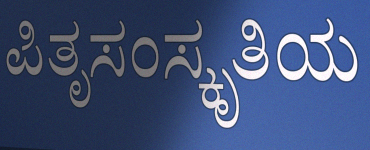
ಪಿತೃಸಂಸ್ಕೃತಿಯ